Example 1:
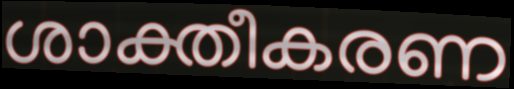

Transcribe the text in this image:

ശാക്തീകരണ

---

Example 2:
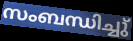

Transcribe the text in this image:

സംബന്ധിച്ചു്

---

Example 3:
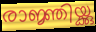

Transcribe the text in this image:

രാജ്ഞിയ്ക്കു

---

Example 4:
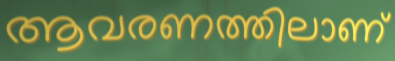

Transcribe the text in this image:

ആവരണത്തിലാണ്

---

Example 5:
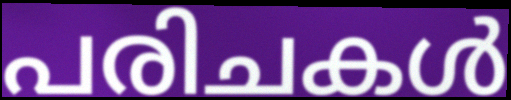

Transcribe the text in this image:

പരിചകൾ